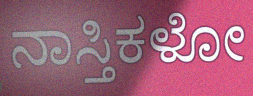
ನಾಸ್ತಿಕಳೋ